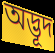
অদ্ভূদ